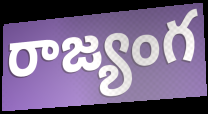
రాజ్యంగ